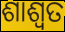
ଶାଶ୍ଵତ